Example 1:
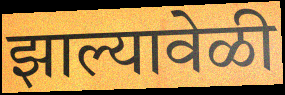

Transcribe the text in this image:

झाल्यावेळी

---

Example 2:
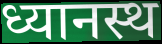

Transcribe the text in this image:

ध्यानस्थ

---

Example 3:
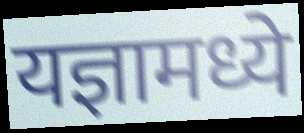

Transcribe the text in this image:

यज्ञामध्ये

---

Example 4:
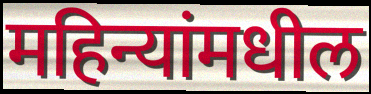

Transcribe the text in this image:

महिन्यांमधील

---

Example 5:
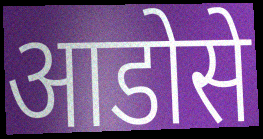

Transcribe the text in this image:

आडोसे